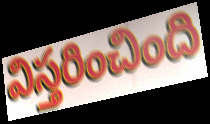
విస్తరించింది